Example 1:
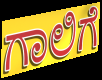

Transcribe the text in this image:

ಗಾಲಿಗೆ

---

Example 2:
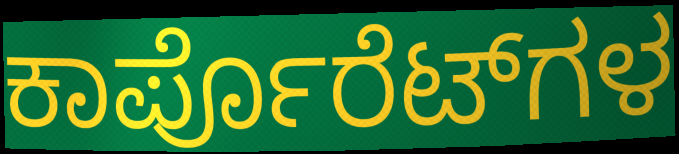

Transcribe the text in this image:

ಕಾರ್ಪೊರೆಟ್‌ಗಳ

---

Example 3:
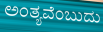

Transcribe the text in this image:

ಅಂತ್ಯವೆಂಬುದು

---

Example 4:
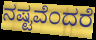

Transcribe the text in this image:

ನಷ್ಟವೆಂದರೆ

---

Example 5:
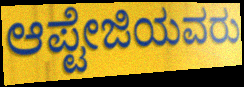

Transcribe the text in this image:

ಆಪ್ಟೇಜಿಯವರು